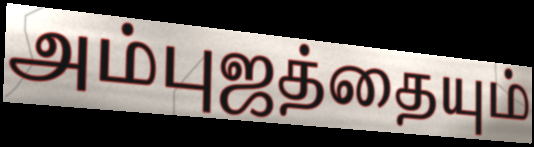
அம்புஜத்தையும்